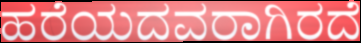
ಹರೆಯದವರಾಗಿರದೆ